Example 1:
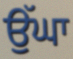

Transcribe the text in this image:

ਉੱਘਾ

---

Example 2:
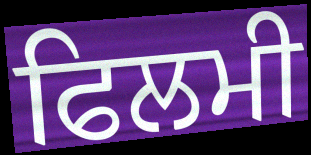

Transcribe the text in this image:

ਫਿਲਮੀ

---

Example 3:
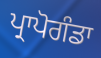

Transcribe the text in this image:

ਪ੍ਰਾਪੋਗੰਡਾ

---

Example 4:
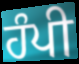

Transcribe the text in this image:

ਹੰਪੀ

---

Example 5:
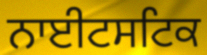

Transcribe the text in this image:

ਨਾਈਟਸਟਿਕ